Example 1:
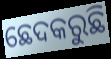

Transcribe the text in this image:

ଛେଦକରୁଛି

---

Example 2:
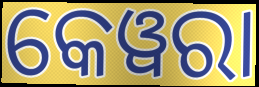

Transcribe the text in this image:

କେୱରା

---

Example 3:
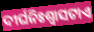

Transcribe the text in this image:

ଦୀର୍ଘନିଃଶ୍ୱାସଟାଏ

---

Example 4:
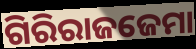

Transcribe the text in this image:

ଗିରିରାଜଜେମା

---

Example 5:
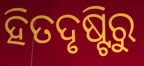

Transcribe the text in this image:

ହିତଦୃଷ୍ଟିରୁ